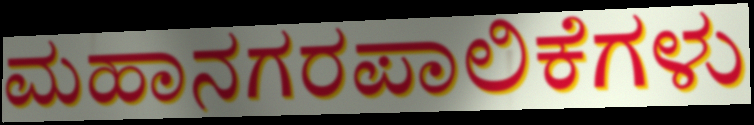
ಮಹಾನಗರಪಾಲಿಕೆಗಳು